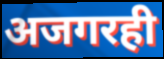
अजगरही